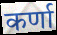
कर्णा